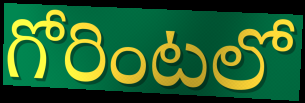
గోరింటలో